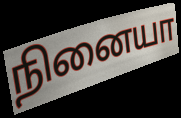
நினையா